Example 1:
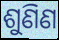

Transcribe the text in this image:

ଶୁଣିଣ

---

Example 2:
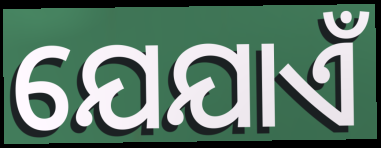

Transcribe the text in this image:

ଯେଯାଏଁ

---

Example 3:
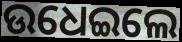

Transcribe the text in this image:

ଉଧେଇଲେ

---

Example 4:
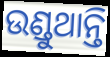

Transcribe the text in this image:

ଉଣ୍ଡୁଥାନ୍ତି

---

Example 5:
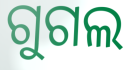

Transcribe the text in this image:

ଗୁଗଲ